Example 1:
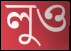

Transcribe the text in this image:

লুও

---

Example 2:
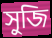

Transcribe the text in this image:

সুজি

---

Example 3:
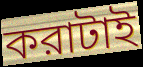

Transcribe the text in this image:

করাটাই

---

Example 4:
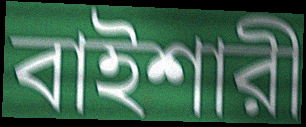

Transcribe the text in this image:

বাইশারী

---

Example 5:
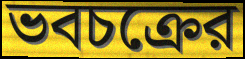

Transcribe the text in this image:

ভবচক্রের